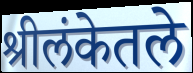
श्रीलंकेतले